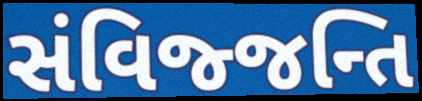
સંવિજ્જન્તિ